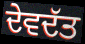
ਦੇਵਦੱਤ